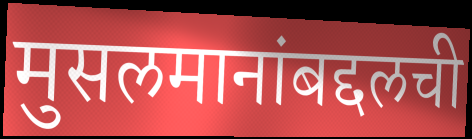
मुसलमानांबद्दलची